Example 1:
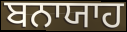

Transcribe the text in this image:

ਬਨਾਯਾਹ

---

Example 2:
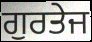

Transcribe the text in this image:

ਗੁਰਤੇਜ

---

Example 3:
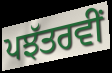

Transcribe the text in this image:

ਪਝੱਤਰਵੀਂ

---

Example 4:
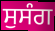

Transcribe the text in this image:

ਸੁਸੰਗ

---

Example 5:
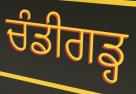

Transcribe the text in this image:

ਚੰਡੀਗਡ੍ਹ